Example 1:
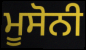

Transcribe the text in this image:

ਮੂਸੋਨੀ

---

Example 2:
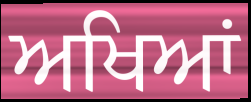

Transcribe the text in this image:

ਅਖਿਆਂ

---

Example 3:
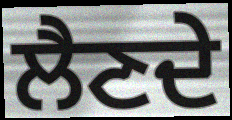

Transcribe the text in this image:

ਲੈਣਦੇ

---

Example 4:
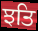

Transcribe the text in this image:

ਝਤਿ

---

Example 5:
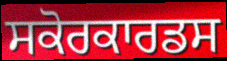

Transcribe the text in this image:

ਸਕੋਰਕਾਰਡਸ